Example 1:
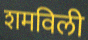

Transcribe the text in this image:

शमविली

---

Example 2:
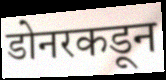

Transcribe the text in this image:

डोनरकडून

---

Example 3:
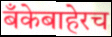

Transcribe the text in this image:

बँकेबाहेरच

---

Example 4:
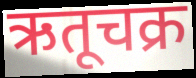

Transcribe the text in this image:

ऋतूचक्र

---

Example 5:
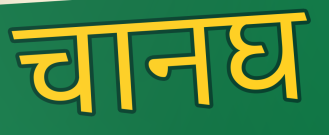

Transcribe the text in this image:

चानघ